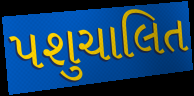
પશુચાલિત